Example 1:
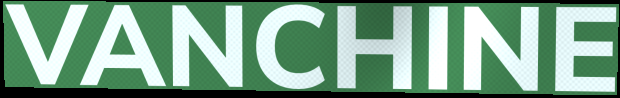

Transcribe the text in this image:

VANCHINE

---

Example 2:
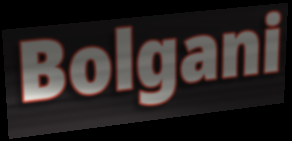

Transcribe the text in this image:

Bolgani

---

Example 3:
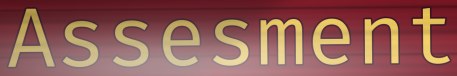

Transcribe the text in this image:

Assesment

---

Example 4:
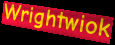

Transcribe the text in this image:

Wrightwiok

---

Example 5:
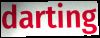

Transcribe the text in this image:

darting